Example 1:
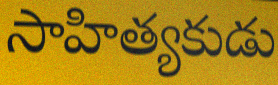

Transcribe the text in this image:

సాహిత్యకుడు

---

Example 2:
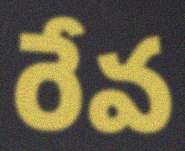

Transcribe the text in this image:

రేవ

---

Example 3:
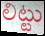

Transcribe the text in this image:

లిట్టు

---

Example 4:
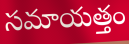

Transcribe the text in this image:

సమాయత్తం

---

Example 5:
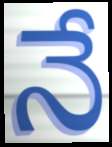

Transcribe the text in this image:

నే